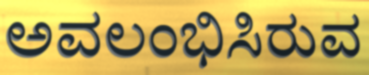
ಅವಲಂಭಿಸಿರುವ